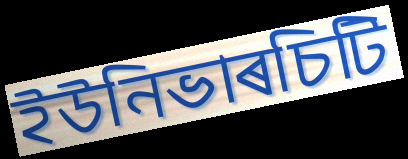
ইউনিভাৰচিটি